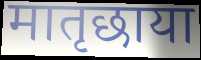
मातृछाया